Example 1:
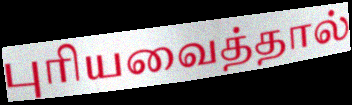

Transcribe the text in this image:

புரியவைத்தால்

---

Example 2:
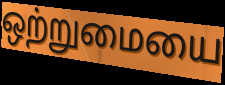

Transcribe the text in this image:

ஒற்றுமையை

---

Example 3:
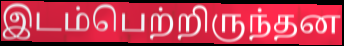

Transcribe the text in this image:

இடம்பெற்றிருந்தன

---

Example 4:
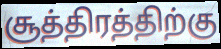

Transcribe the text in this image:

சூத்திரத்திற்கு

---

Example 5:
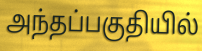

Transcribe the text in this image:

அந்தப்பகுதியில்